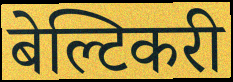
बेल्टिकरी